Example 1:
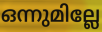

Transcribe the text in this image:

ഒന്നുമില്ലേ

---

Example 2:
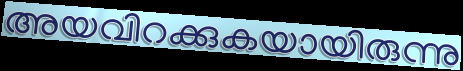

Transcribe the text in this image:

അയവിറക്കുകയായിരുന്നു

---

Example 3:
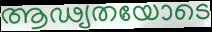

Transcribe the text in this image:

ആഢ്യതയോടെ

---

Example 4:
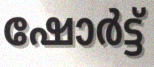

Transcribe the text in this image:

ഷോർട്ട്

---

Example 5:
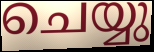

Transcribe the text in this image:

ചെയ്യു